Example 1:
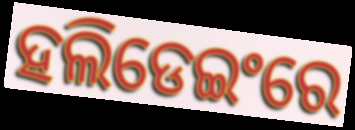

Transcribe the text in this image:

ହଲିଡେଇଂରେ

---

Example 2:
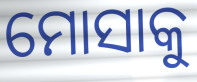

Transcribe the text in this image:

ମୋସାକୁ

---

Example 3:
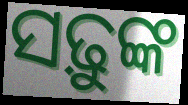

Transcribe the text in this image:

ସଢ଼ୁଙ୍କ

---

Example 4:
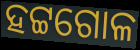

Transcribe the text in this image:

ହଟ୍ଟଗୋଳ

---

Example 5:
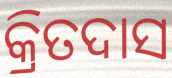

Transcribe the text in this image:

କ୍ରିତଦାସ